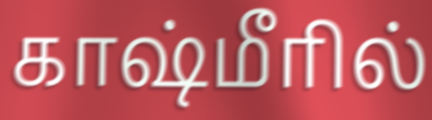
காஷ்மீரில்